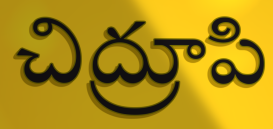
చిద్రూపి